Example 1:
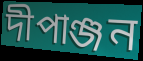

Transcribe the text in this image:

দীপাঞ্জন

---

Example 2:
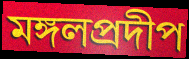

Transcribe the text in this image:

মঙ্গলপ্রদীপ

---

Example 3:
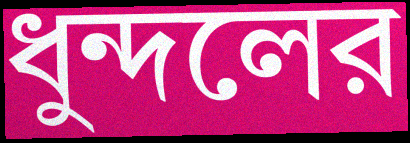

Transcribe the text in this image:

ধুন্দলের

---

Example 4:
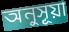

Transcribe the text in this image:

অনুসূয়া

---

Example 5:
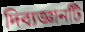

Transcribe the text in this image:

দিব্যজ্ঞানটি